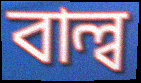
বাল্ব